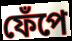
ফেঁপে